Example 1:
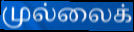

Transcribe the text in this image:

முல்லைக்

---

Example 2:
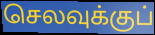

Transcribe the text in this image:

செலவுக்குப்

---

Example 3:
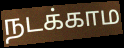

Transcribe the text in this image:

நடக்காம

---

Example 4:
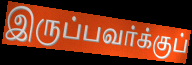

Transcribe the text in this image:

இருப்பவர்க்குப்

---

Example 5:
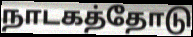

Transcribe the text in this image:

நாடகத்தோடு